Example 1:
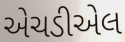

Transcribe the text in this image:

એચડીએલ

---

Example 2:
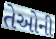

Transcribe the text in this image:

તેઓની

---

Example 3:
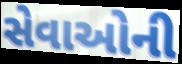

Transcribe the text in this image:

સેવાઓની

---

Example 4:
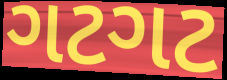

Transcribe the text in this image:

ગટગટ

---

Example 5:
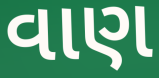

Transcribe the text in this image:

વાણ